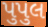
પુપુલ